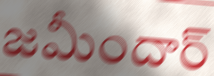
జమీందార్